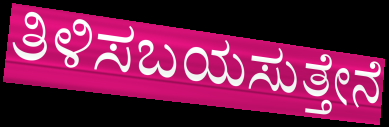
ತಿಳಿಸಬಯಸುತ್ತೇನೆ